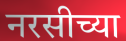
नरसीच्या